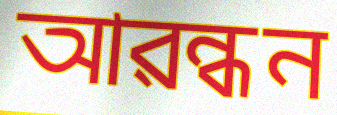
আৱন্ধন